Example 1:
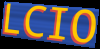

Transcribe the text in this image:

LCIO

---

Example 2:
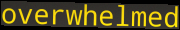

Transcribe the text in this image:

overwhelmed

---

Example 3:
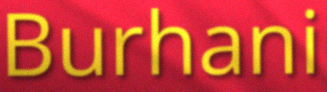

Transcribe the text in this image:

Burhani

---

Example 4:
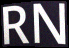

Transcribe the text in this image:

RN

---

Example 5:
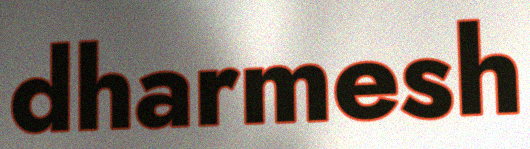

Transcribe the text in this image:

dharmesh